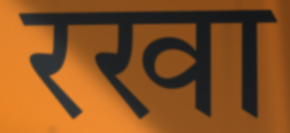
रखा